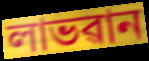
লাভৱান